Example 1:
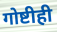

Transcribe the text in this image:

गोष्टीही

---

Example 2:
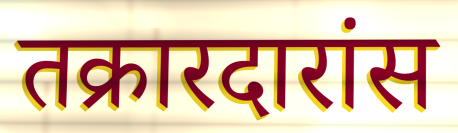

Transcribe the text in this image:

तक्रारदारांस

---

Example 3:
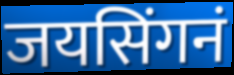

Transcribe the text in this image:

जयसिंगनं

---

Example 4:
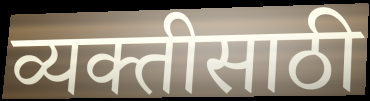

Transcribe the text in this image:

व्यक्तीसाठी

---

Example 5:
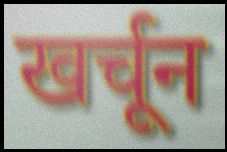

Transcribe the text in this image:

खर्चून